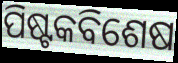
ପିଷ୍ଟକବିଶେଷ